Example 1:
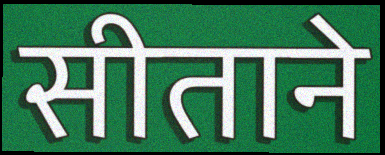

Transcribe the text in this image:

सीताने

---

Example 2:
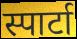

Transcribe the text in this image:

स्पार्टा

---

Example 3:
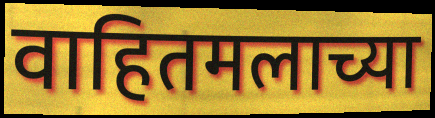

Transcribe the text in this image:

वाहितमलाच्या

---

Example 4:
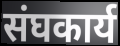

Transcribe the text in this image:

संघकार्य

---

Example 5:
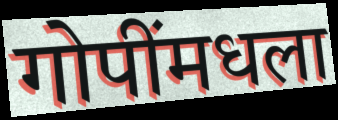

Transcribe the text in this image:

गोपींमधला